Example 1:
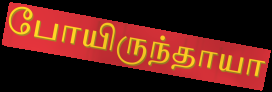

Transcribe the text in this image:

போயிருந்தாயா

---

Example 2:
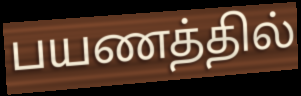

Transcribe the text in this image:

பயணத்தில்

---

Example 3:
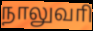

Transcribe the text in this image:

நாலுவரி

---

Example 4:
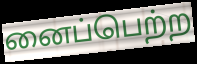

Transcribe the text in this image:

னைப்பெற்ற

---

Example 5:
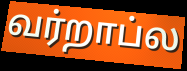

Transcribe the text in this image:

வர்றாப்ல